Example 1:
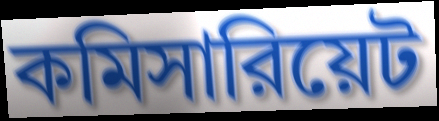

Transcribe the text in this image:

কমিসারিয়েট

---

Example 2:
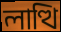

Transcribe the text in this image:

লাত্থি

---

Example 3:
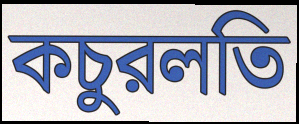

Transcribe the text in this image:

কচুরলতি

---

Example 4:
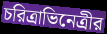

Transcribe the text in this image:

চরিত্রাভিনেত্রীর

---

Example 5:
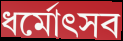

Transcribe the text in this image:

ধর্মোৎসব